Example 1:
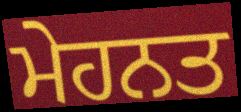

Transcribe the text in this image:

ਮੇਹਨਤ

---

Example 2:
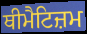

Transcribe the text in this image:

ਥੀਮੈਟਿਜ਼ਮ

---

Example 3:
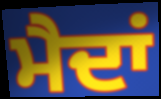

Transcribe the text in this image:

ਮੈਦਾਂ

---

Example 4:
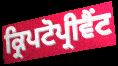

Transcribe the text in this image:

ਕ੍ਰਿਪਟੋਪ੍ਰੀਵੈਂਟ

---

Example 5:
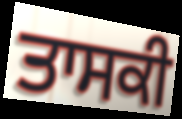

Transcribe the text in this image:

ਤਾਸਕੀ